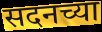
सदनच्या